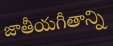
జాతీయగీతాన్ని